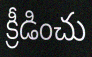
క్రీడించు